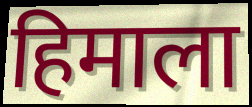
हिमाला